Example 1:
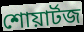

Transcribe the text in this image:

শোয়ার্টজ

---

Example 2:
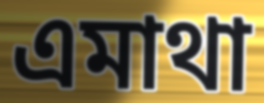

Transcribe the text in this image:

এমাথা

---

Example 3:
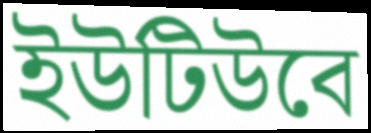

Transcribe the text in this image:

ইউটিউবে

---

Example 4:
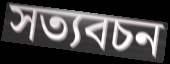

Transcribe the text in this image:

সত্যবচন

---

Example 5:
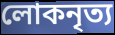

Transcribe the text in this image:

লোকনৃত্য